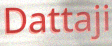
Dattaji